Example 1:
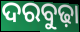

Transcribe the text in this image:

ଦରବୁଢ଼ା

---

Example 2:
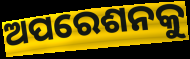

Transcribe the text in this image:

ଅପରେଶନକୁ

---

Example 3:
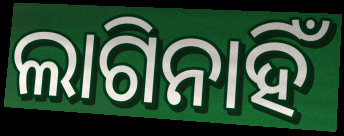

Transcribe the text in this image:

ଲାଗିନାହିଁ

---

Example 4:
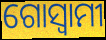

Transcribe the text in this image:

ଗୋସ୍ୱାମୀ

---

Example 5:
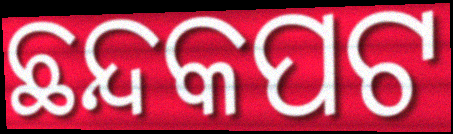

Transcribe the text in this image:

ଛନ୍ଦକପଟ